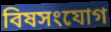
বিষসংযোগ